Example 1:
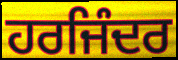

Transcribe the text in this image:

ਹਰਜਿੰਦਰ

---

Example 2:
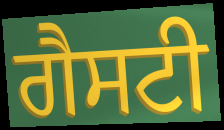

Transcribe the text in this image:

ਗੈਸਟੀ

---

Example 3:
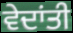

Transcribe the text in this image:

ਵੇਦਾਂਤੀ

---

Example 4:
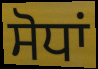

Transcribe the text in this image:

ਸੋਧਾਂ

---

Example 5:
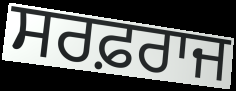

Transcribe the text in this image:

ਸਰਫ਼ਰਾਜ